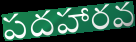
పదహారవ